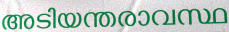
അടിയന്തരാവസ്ഥ